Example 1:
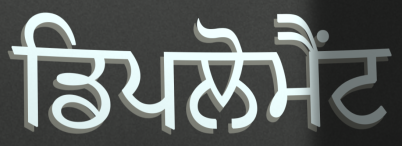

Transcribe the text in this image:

ਡਿਪਲੋਮੈਂਟ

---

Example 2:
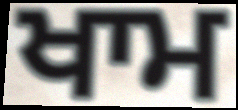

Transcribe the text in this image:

ਖਾਮ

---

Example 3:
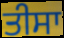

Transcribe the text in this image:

ਤੀਸਾ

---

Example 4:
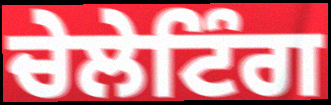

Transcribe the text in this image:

ਚੇਲੇਟਿੰਗ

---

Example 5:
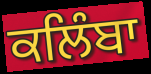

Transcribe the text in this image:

ਕਲਿੰਬਾ